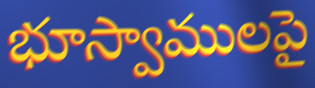
భూస్వాములపై